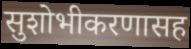
सुशोभीकरणासह